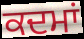
ਕਦਮਾਂ